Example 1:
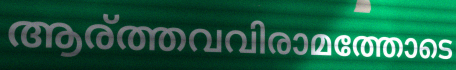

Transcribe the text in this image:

ആര്ത്തവവിരാമത്തോടെ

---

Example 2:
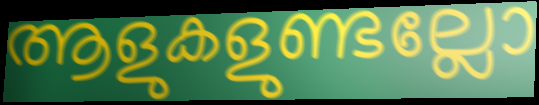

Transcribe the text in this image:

ആളുകളുണ്ടല്ലോ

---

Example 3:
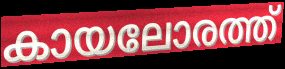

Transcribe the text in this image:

കായലോരത്ത്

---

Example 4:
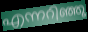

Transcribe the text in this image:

എന്നറിഞ്ഞു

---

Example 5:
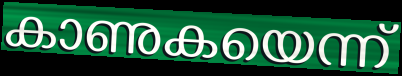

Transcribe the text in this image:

കാണുകയെന്ന്